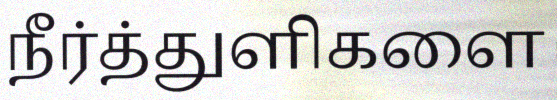
நீர்த்துளிகளை